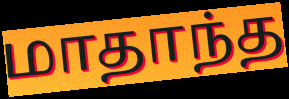
மாதாந்த